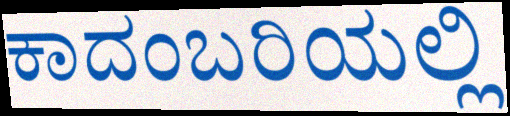
ಕಾದಂಬರಿಯಲ್ಲಿ